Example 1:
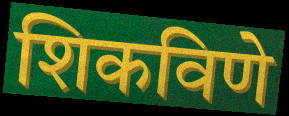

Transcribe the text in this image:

शिकविणे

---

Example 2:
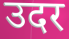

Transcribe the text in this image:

उदर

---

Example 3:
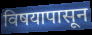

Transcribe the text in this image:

विषयापासून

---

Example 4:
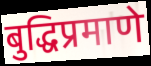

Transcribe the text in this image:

बुद्धिप्रमाणे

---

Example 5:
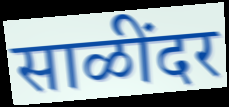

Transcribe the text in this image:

साळींदर